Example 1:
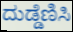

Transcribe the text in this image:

ದುಡ್ಡೆಣಿಸಿ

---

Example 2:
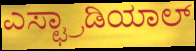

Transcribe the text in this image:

ಎಸ್ಟ್ರಾಡಿಯಾಲ್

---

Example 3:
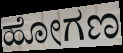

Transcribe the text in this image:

ಹೋಗಣ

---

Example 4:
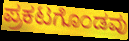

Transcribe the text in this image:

ಪ್ರಕಟಗೊಂಡವು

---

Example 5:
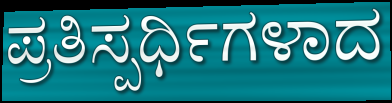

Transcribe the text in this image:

ಪ್ರತಿಸ್ಪರ್ಧಿಗಳಾದ